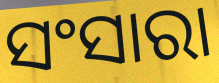
ସଂସାରା